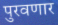
पुरवणार